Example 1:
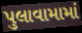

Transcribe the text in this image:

પુલાવામામાં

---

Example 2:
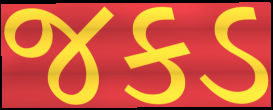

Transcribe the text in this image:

જકડ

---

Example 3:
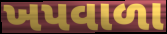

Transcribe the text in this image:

ખપવાળા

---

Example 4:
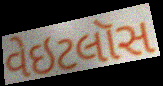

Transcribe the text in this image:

વેઇટલૉસ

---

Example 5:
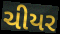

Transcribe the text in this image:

ચીયર